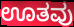
ಊತವು